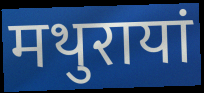
मथुरायां